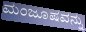
ಮಂಜೂಷವನ್ನು